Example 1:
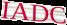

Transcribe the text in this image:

IADC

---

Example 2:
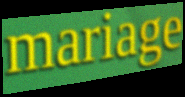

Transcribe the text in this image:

mariage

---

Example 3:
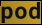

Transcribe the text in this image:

pod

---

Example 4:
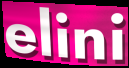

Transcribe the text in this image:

elini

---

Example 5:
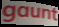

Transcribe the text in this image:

gaunt